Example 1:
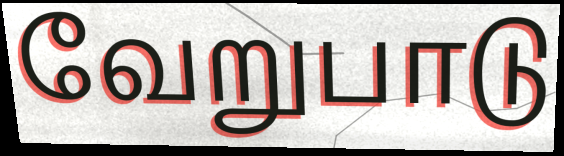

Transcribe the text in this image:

வேறுபாடு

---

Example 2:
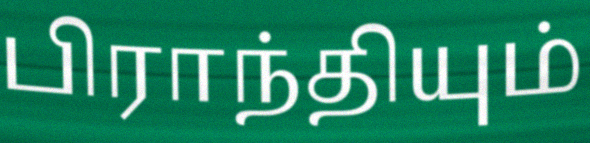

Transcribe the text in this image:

பிராந்தியும்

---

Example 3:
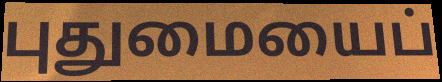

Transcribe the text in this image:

புதுமையைப்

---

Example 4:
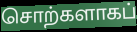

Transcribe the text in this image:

சொற்களாகப்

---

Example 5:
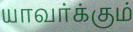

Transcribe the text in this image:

யாவர்க்கும்